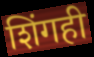
शिंगही